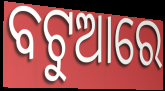
ବଟୁଆରେ